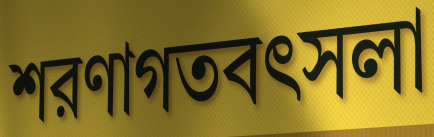
শরণাগতবৎসলা